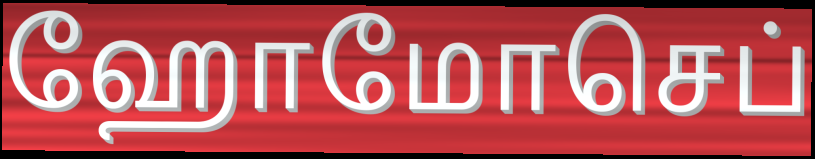
ஹோமோசெப்